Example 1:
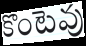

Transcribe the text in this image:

కొంటెవు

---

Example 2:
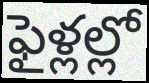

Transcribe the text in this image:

ఫైళ్లల్లో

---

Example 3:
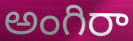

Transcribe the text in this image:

అంగిరా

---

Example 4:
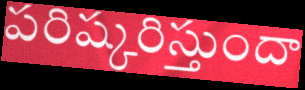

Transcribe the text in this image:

పరిష్కరిస్తుందా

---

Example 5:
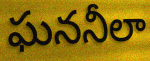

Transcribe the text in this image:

ఘననీలా